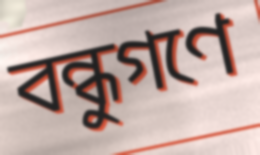
বন্ধুগণে